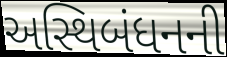
અસ્થિબંધનની